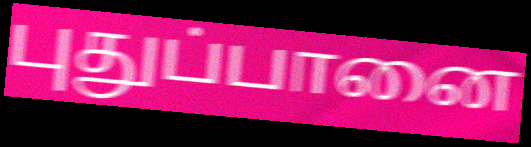
புதுப்பானை